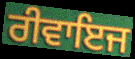
ਰੀਵਾਇਜ